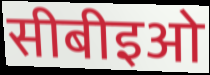
सीबीइओ